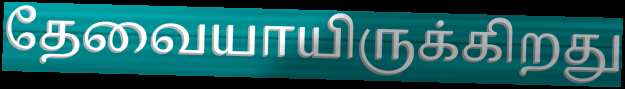
தேவையாயிருக்கிறது